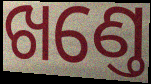
ଖଣ୍ତେ